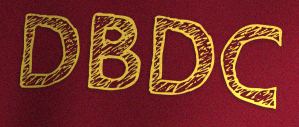
DBDC